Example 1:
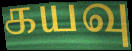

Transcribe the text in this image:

கயவு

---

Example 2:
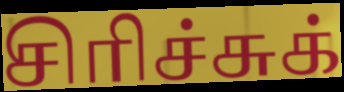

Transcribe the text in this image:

சிரிச்சுக்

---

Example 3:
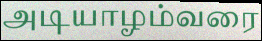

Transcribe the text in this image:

அடியாழம்வரை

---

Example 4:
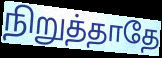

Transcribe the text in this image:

நிறுத்தாதே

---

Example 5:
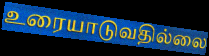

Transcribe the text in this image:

உரையாடுவதில்லை